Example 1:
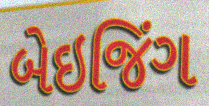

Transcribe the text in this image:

બેઇજિંગ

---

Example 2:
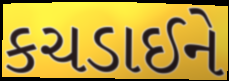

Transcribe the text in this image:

કચડાઈને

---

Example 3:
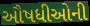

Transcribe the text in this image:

ઔષધીઓની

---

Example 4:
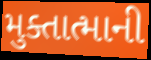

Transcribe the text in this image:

મુક્તાત્માની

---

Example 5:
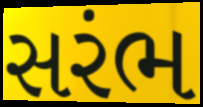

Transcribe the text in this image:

સરંભ